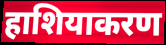
हाशियाकरण